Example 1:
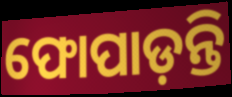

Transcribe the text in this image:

ଫୋପାଡ଼ନ୍ତି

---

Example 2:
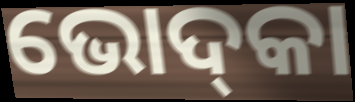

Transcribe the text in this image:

ଭୋଦ୍‌କା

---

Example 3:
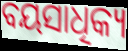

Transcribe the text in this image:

ବୟସାଧିକ୍ୟ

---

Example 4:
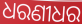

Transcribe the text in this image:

ଧରଣୀଧର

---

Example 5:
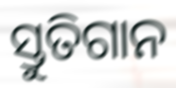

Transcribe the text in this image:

ସ୍ତୁତିଗାନ